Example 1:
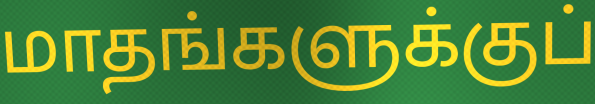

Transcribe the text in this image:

மாதங்களுக்குப்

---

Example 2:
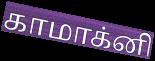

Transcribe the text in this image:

காமாக்னி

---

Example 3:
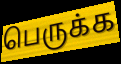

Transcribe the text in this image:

பெருக்க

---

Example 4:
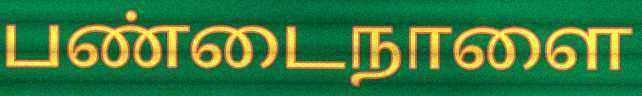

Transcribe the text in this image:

பண்டைநாளை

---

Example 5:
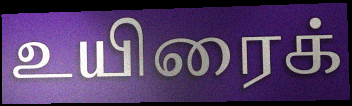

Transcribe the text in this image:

உயிரைக்